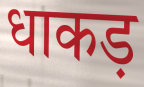
धाकड़